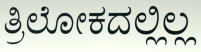
ತ್ರಿಲೋಕದಲ್ಲಿಲ್ಲ